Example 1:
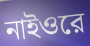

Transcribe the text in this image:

নাইওরে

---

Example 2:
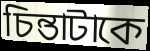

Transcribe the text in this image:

চিন্তাটাকে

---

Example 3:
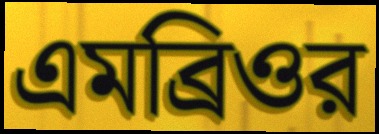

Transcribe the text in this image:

এমব্রিওর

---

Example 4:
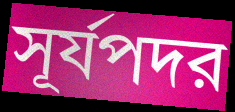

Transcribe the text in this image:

সূর্যপদর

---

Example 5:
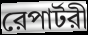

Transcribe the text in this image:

রেপার্টরী